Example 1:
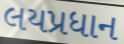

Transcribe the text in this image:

લયપ્રધાન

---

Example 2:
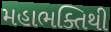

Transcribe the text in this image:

મહાભક્તિથી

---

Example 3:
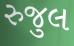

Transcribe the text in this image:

રુજુલ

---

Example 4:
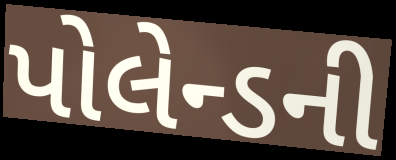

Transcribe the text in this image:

પોલેન્ડની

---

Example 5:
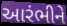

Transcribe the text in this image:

આરંભીને